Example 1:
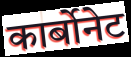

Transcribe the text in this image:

कार्बोनेट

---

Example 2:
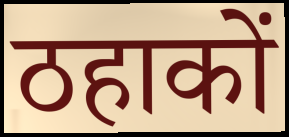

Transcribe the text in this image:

ठहाकों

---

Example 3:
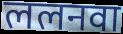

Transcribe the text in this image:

ललनवा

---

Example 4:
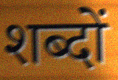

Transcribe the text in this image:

शब्दों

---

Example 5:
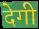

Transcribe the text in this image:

देगी